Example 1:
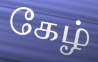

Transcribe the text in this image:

கேழ்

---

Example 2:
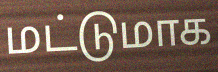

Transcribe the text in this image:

மட்டுமாக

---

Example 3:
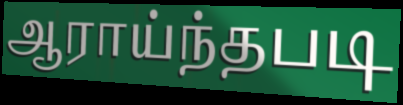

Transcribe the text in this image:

ஆராய்ந்தபடி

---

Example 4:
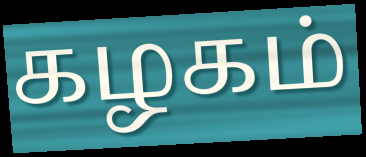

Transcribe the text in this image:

கழகம்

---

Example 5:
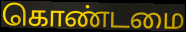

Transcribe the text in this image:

கொண்டமை